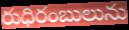
రుధిరంబులును